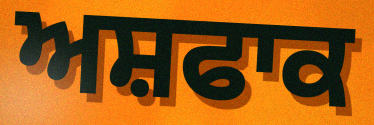
ਅਸ਼ਫਾਕ